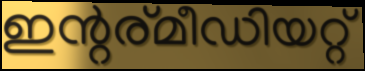
ഇന്റര്മീഡിയറ്റ്